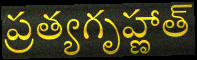
ప్రత్యగృహ్ణాత్